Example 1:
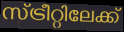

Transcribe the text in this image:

സ്ട്രീറ്റിലേക്ക്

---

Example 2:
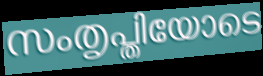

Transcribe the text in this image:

സംതൃപ്തിയോടെ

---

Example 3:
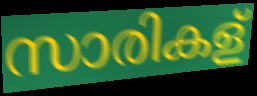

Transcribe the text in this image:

സാരികള്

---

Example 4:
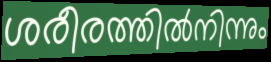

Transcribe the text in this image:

ശരീരത്തിൽനിന്നും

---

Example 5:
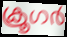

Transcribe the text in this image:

ക്രൂഗർ